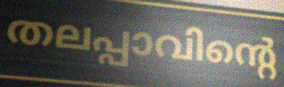
തലപ്പാവിന്റെ